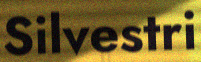
Silvestri